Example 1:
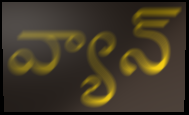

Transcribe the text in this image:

వ్యాన్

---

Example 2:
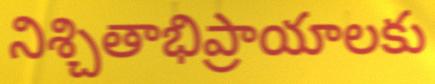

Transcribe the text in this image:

నిశ్చితాభిప్రాయాలకు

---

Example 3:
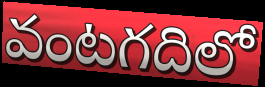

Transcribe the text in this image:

వంటగదిలో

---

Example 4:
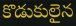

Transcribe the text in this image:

కొడుకులైన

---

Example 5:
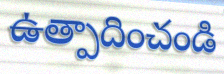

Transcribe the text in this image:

ఉత్పాదించండి